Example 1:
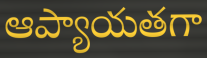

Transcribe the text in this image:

ఆప్యాయతగా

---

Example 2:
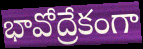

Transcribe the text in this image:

భావోద్రేకంగా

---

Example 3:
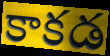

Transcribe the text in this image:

కాకడ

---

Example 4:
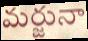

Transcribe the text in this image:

మర్జునా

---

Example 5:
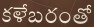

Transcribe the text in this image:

కళేబరంతో